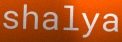
shalya